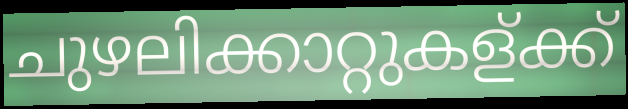
ചുഴലിക്കാറ്റുകള്ക്ക്